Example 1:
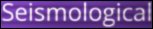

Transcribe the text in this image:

Seismological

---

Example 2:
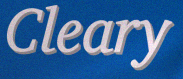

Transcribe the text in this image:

Cleary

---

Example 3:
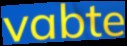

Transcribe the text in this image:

vabte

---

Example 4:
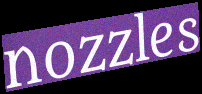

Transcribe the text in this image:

nozzles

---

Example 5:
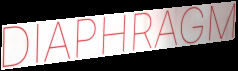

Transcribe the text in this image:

DIAPHRAGM